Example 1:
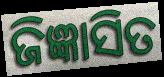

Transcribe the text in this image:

ଜିଜ୍ଞାସିତ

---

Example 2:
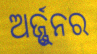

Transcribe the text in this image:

ଅର୍ଜ୍ଜୁନର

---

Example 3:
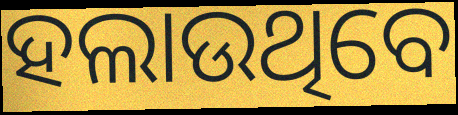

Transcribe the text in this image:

ହଲାଉଥିବେ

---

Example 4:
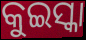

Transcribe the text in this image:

କୁଇସ୍କା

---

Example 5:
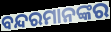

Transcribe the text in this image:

ବନ୍ଦରମାନଙ୍କର